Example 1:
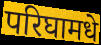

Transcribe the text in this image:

परिघामधे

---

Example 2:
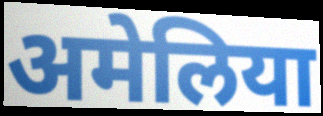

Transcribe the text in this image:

अमेलिया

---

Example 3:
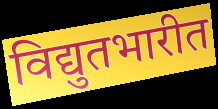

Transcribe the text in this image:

विद्युतभारीत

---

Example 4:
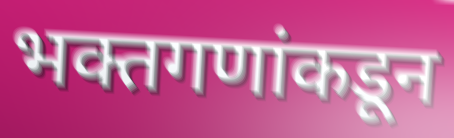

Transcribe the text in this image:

भक्तगणांकडून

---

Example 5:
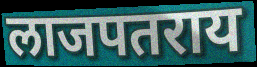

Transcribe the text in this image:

लाजपतराय